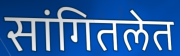
सांगितलेत